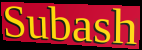
Subash